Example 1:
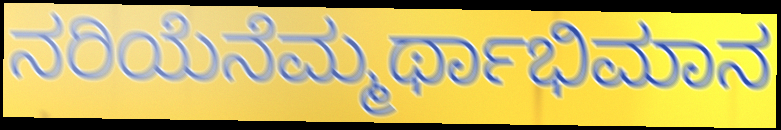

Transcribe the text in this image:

ನರಿಯೆನೆಮ್ಮರ್ಥಾಭಿಮಾನ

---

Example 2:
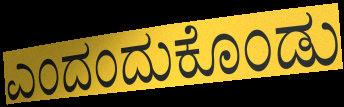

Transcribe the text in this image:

ಎಂದಂದುಕೊಂಡು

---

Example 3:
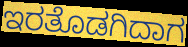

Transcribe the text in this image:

ಇರತೊಡಗಿದಾಗ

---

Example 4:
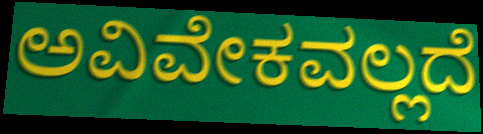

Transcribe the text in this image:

ಅವಿವೇಕವಲ್ಲದೆ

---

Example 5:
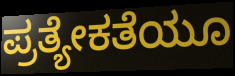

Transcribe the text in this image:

ಪ್ರತ್ಯೇಕತೆಯೂ